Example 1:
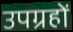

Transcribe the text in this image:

उपग्रहों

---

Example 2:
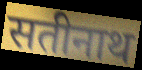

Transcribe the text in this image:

सतीनाथ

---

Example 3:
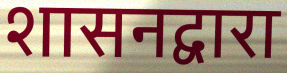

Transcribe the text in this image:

शासनद्वारा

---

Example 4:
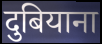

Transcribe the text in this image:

दुबियाना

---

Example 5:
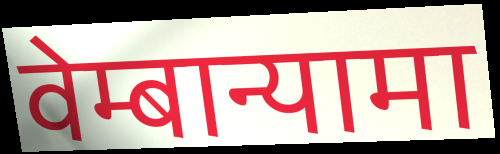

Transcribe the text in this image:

वेम्बान्यामा